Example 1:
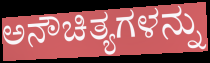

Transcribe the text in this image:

ಅನೌಚಿತ್ಯಗಳನ್ನು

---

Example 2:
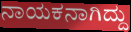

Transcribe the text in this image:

ನಾಯಕನಾಗಿದ್ದು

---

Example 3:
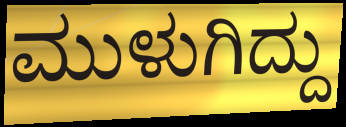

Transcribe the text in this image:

ಮುಳುಗಿದ್ದು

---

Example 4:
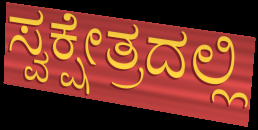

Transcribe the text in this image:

ಸ್ವಕ್ಷೇತ್ರದಲ್ಲಿ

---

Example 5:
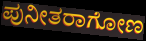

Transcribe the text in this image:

ಪುನೀತರಾಗೋಣ